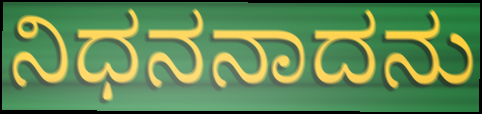
ನಿಧನನಾದನು